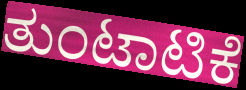
ತುಂಟಾಟಿಕೆ